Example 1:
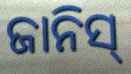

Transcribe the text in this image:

ଜାନିସ୍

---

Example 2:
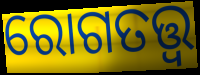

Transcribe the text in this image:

ରୋଗତତ୍ତ୍ୱ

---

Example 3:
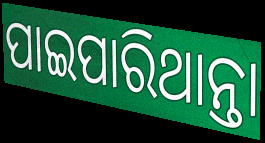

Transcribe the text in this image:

ପାଇପାରିଥାନ୍ତା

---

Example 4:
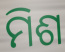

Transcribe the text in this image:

ମିଶ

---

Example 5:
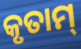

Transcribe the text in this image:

କୃତାମ୍